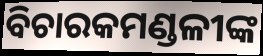
ବିଚାରକମଣ୍ଡଳୀଙ୍କ